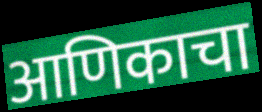
आणिकाचा